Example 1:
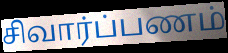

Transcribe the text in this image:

சிவார்ப்பணம்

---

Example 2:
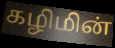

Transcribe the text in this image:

கழிமின்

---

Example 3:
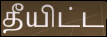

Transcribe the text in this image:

தீயிட்ட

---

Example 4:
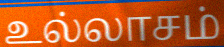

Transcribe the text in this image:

உல்லாசம்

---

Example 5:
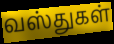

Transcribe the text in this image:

வஸ்துகள்